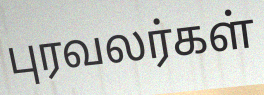
புரவலர்கள்